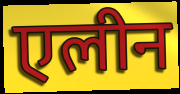
एलीन